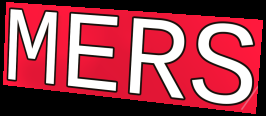
MERS